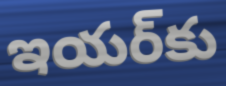
ఇయర్‌కు